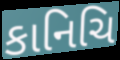
કાનિચિ